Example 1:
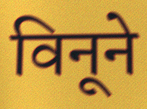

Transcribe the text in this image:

विनूने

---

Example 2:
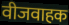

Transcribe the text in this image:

वीजवाहक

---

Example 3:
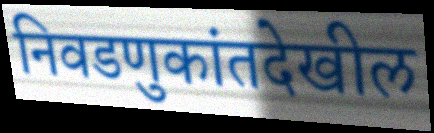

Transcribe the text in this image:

निवडणुकांतदेखील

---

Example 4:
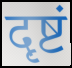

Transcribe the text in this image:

दृष्टं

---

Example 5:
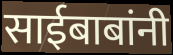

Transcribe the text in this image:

साईबाबांनी